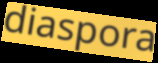
diaspora